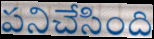
పనిచేసింది